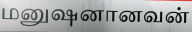
மனுஷனானவன்